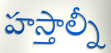
హస్తాల్నీ